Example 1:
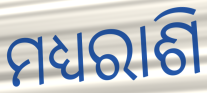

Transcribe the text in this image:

ମଧ୍ୟରାଶି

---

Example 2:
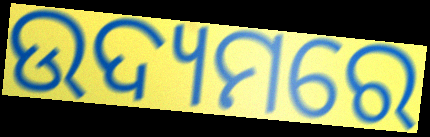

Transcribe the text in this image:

ଉଦ୍ୟମରେ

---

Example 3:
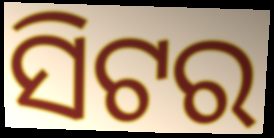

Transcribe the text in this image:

ସିଟର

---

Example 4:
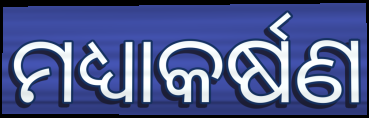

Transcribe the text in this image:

ମଧ୍ୟାକର୍ଷଣ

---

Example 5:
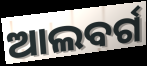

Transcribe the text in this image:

ଆଲବର୍ଗ